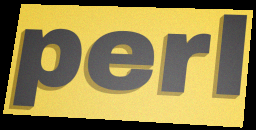
perl